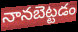
నానబెట్టడం